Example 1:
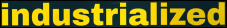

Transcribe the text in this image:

industrialized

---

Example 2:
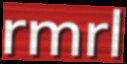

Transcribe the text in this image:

rmrl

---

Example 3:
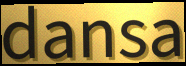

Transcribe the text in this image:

dansa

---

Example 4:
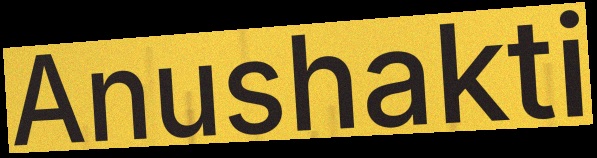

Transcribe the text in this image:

Anushakti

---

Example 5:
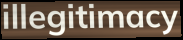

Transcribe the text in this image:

illegitimacy